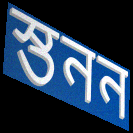
স্তনন